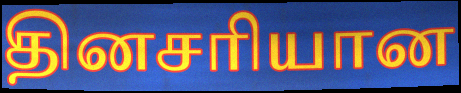
தினசரியான